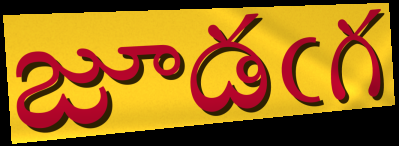
జూడఁగ